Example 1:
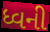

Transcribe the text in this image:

ધ્વની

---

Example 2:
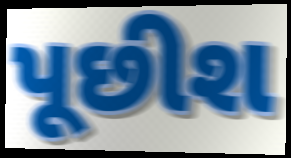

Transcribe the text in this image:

પૂછીશ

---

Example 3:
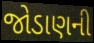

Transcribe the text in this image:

જોડાણની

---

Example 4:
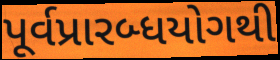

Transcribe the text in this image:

પૂર્વપ્રારબ્ધયોગથી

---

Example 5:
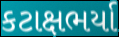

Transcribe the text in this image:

કટાક્ષભર્યા